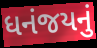
ધનંજયનું